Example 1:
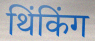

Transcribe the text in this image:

थिंकिंग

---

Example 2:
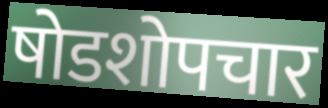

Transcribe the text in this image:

षोडशोपचार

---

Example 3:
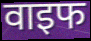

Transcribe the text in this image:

वाइफ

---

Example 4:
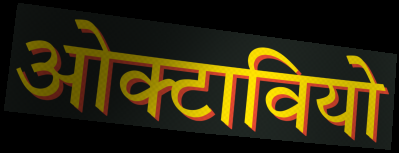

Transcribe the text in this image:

ओक्टावियो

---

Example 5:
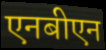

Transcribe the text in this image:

एनबीएन